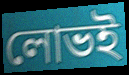
লোভই